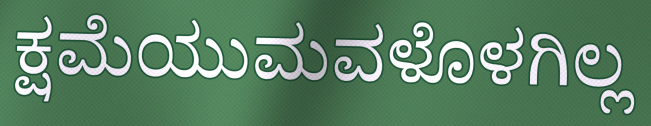
ಕ್ಷಮೆಯುಮವಳೊಳಗಿಲ್ಲ